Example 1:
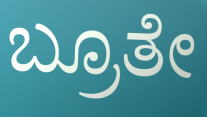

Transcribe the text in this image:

ಬ್ರೂತೇ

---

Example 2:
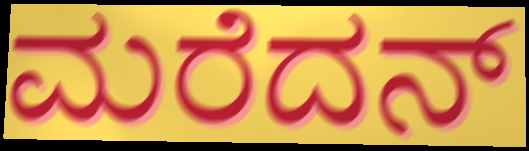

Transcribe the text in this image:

ಮರೆದನ್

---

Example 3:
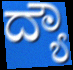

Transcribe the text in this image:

ದ್ಯೌ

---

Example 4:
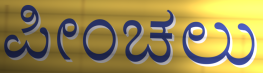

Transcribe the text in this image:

ಪೀಂಚಲು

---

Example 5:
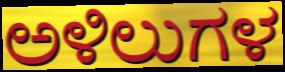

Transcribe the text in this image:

ಅಳಿಲುಗಳ